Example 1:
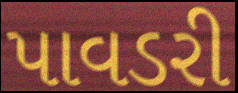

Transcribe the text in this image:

પાવડરી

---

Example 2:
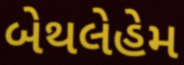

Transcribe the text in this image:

બેથલેહેમ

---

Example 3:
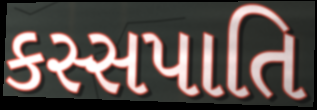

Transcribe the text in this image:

કસ્સપાતિ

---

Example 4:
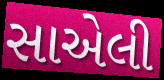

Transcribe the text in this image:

સાએલી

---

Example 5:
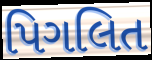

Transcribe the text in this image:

પિગલિત